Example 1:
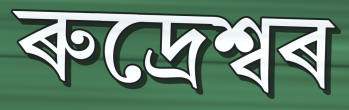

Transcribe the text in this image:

ৰুদ্ৰেশ্বৰ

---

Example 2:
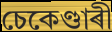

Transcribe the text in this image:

চেকেণ্ডাৰী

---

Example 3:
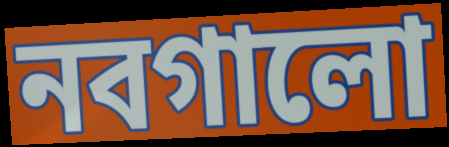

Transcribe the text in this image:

নবগালো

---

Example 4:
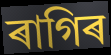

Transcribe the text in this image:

ৰাগিৰ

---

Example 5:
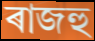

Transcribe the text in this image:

ৰাজহু